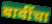
बाबींचा